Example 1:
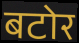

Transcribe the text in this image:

बटोर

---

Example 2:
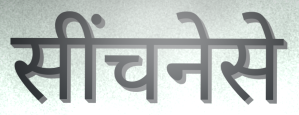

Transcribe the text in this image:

सींचनेसे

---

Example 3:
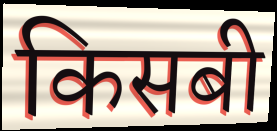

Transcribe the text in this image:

किसबी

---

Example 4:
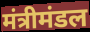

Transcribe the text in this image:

मंत्रीमंडल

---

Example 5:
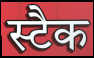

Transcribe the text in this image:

स्‍टैक